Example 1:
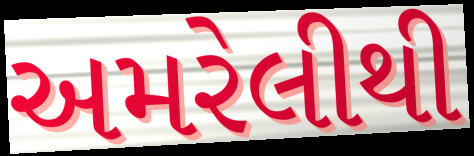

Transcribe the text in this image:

અમરેલીથી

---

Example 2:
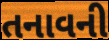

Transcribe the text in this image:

તનાવની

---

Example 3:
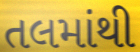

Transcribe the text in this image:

તલમાંથી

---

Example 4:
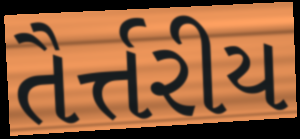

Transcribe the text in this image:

તૈર્ત્તરીય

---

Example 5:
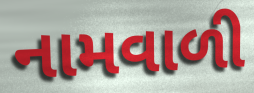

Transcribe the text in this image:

નામવાળી